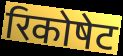
रिकोषेट